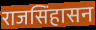
राजसिंहासन